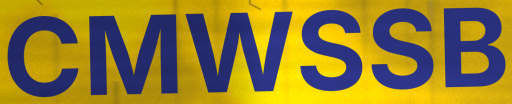
CMWSSB